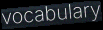
vocabulary